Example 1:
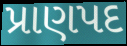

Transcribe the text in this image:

પ્રાણપદ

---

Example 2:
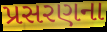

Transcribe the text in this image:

પ્રસરણના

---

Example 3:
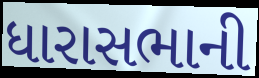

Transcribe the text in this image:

ધારાસભાની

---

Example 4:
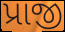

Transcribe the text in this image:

પ્રાજી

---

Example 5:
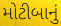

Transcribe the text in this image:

મોટીબાનું